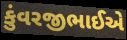
કુંવરજીભાઈએ